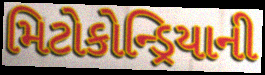
મિટોકોન્ડ્રિયાની